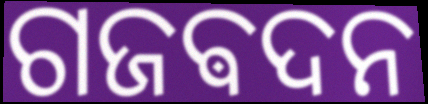
ଗଜଵଦନ